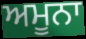
ਅਮੂਨਾ